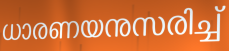
ധാരണയനുസരിച്ച്